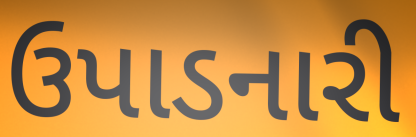
ઉપાડનારી